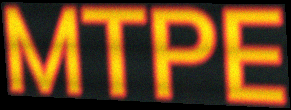
MTPE